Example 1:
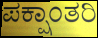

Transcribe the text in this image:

ಪಕ್ಷಾಂತರಿ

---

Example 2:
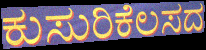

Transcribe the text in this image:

ಕುಸುರಿಕೆಲಸದ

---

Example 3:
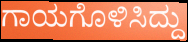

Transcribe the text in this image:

ಗಾಯಗೊಳಿಸಿದ್ದು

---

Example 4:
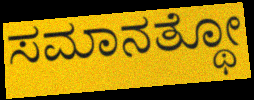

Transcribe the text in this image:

ಸಮಾನತ್ಥೋ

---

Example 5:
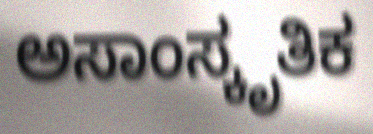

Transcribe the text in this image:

ಅಸಾಂಸ್ಕೃತಿಕ